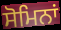
ਸੋਮਿਨਾਂ